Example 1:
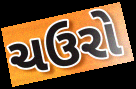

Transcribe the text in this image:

ચઉરો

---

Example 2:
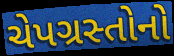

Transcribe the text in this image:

ચેપગ્રસ્તોનો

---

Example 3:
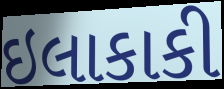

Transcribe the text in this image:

ઇલાકાકી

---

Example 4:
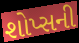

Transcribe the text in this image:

શોપ્સની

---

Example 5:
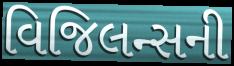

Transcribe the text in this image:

વિજિલન્સની